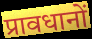
प्रावधानों